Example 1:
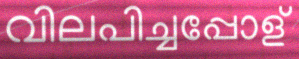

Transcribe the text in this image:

വിലപിച്ചപ്പോള്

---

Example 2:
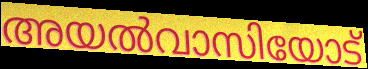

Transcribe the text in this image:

അയൽവാസിയോട്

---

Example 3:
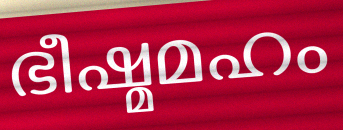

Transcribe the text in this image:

ഭീഷ്മമഹം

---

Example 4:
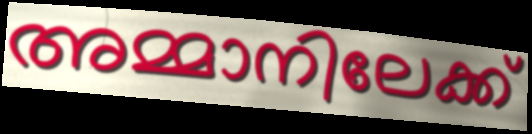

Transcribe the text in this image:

അമ്മാനിലേക്ക്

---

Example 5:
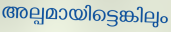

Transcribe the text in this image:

അല്പമായിട്ടെങ്കിലും